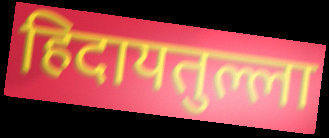
हिदायतुल्ला